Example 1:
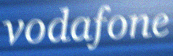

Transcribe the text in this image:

vodafone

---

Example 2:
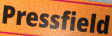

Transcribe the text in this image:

Pressfield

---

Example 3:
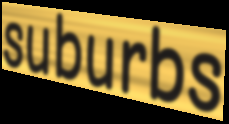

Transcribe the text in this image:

suburbs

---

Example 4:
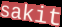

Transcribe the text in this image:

sakit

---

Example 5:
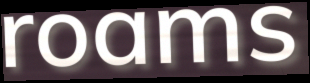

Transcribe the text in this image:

roams